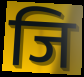
जि